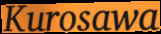
Kurosawa